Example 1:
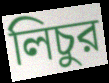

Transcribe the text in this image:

লিচুর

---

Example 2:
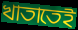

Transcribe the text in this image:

খাতাতেই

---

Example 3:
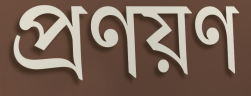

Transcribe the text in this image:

প্রণয়ণ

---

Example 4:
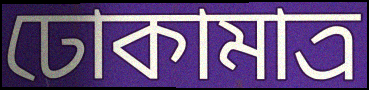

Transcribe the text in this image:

ঢোকামাত্র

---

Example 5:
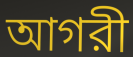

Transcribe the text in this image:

আগরী